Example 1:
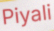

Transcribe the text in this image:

Piyali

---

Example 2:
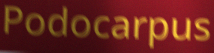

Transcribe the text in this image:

Podocarpus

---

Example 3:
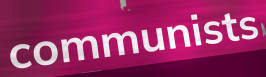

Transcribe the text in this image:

communists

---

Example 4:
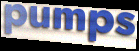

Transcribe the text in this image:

pumps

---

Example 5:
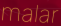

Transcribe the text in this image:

malar